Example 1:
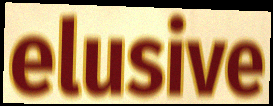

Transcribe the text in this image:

elusive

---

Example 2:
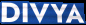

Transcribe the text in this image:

DIVYA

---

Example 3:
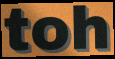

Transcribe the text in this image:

toh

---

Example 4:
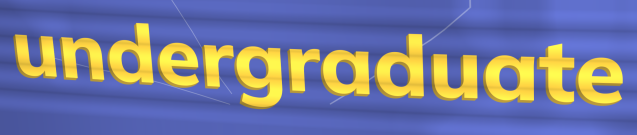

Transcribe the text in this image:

undergraduate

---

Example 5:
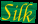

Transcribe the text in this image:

Silk